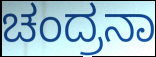
ಚಂದ್ರನಾ